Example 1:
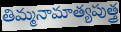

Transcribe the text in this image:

తిమ్మనామాత్యపుత్త్ర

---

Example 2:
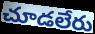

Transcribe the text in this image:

చూడలేరు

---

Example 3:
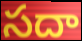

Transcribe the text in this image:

సదా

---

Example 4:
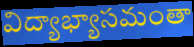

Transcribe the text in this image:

విద్యాభ్యాసమంతా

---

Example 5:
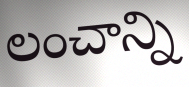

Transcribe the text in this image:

లంచాన్ని